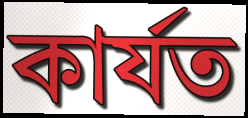
কাৰ্যত